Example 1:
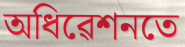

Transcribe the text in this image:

অধিৱেশনতে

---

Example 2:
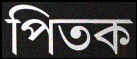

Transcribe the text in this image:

পিতক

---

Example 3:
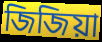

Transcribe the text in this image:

জিজিয়া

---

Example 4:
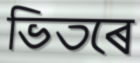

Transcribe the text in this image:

ভিতৰে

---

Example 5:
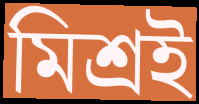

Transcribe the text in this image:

মিশ্ৰই